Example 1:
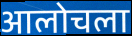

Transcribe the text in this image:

आलोचला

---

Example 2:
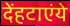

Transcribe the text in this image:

देंहटाएंये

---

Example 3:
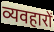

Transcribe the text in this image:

व्यवहारों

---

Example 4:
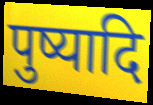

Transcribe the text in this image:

पुष्यादि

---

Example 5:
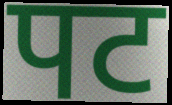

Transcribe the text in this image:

पट